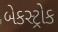
બેકસ્ટ્રોક